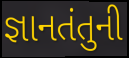
જ્ઞાનતંતુની